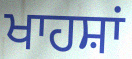
ਖਾਹਸ਼ਾਂ